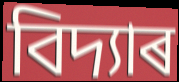
বিদ্যাৰ